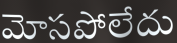
మోసపోలేదు